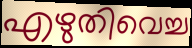
എഴുതിവെച്ച